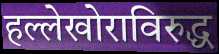
हल्लेखोराविरुद्ध